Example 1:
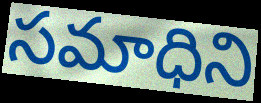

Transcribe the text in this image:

సమాధిని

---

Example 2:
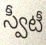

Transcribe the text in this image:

స్వీటీ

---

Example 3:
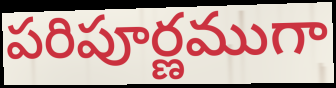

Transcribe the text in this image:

పరిపూర్ణముగా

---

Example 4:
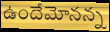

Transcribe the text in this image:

ఉందేమోనన్న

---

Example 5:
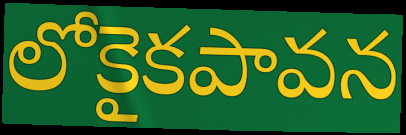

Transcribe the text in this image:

లోకైకపావన